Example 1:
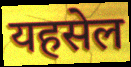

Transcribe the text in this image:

यहसेल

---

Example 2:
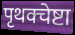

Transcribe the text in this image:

पृथक्चेष्टा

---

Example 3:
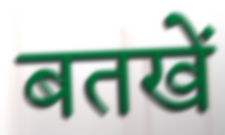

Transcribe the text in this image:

बतखें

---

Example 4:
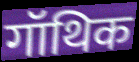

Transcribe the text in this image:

गॉथिक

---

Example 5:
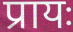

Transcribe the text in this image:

प्रायः